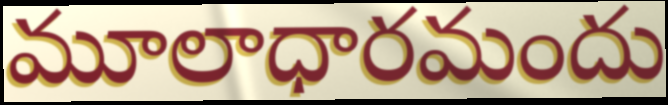
మూలాధారమందు